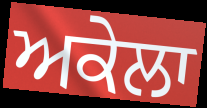
ਅਕੇਲਾ